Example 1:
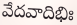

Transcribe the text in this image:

వేదవాదిభిః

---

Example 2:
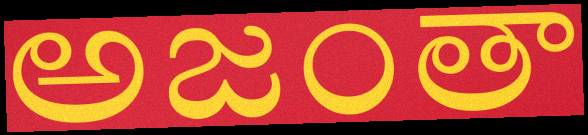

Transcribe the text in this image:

అజంతా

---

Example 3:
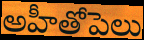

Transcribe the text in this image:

అహీతోపెలు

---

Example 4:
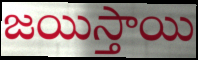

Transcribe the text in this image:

జయిస్తాయి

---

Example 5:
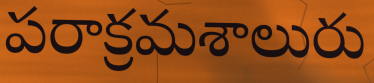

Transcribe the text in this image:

పరాక్రమశాలురు